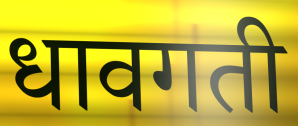
धावगती